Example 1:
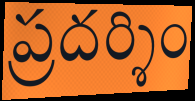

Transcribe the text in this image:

ప్రదర్శిం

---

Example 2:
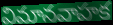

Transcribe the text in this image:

విమానవాహక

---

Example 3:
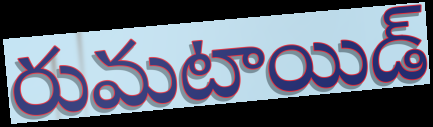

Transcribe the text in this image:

రుమటాయిడ్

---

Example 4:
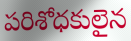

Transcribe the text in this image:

పరిశోధకులైన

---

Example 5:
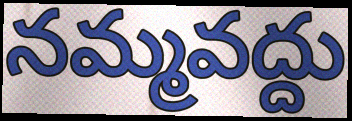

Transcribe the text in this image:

నమ్మవద్దు